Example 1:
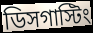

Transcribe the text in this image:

ডিসগাস্টিং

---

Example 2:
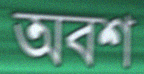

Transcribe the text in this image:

অবশ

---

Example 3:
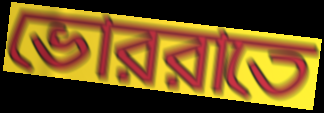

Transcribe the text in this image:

ভোররাতে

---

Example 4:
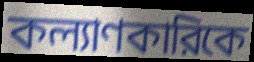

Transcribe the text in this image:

কল্যাণকারিকে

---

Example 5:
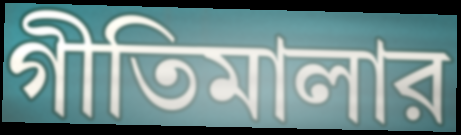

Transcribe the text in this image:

গীতিমালার